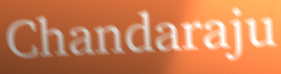
Chandaraju